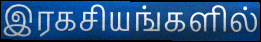
இரகசியங்களில்